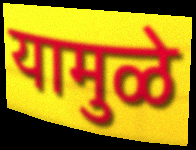
यामुळे